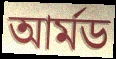
আৰ্মড